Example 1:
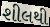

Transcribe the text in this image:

શીલથી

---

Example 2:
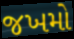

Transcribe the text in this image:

જખમો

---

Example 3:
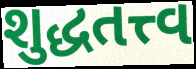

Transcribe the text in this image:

શુદ્ધતત્ત્વ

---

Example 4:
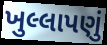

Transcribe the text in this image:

ખુલ્લાપણું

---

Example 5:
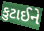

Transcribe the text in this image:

કુટાઈને